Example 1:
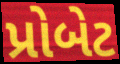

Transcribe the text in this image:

પ્રોબેટ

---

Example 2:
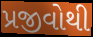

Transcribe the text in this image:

પ્રજીવોથી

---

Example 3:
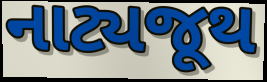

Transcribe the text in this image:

નાટ્યજૂથ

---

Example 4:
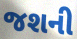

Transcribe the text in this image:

જશની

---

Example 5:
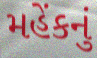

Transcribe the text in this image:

મહેંકનું